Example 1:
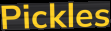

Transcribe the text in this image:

Pickles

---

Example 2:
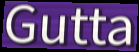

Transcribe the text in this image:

Gutta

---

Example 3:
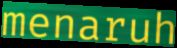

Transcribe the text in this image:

menaruh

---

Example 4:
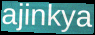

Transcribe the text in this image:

ajinkya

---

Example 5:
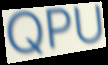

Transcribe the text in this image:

QPU